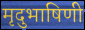
मृदुभाषिणी